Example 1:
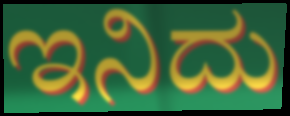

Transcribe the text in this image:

ಇನಿದು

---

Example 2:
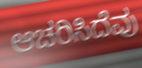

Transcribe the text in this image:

ಆಚರಿಸಿದೆವು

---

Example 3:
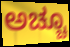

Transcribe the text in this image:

ಅಚ್ಚೂ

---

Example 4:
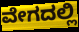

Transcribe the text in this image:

ವೇಗದಲ್ಲಿ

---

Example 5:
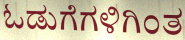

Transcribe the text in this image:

ಓಡುಗೆಗಳಿಗಿಂತ